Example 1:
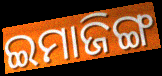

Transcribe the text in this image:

ଇମାଜିଙ୍ଗ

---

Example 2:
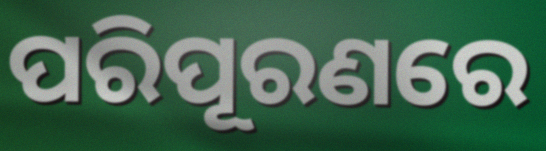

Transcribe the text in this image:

ପରିପୂରଣରେ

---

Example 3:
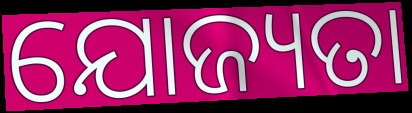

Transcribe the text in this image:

ଯୋଜ୍ୟତା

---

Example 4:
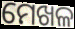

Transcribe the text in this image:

ମେଖଳ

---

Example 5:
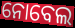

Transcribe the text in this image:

ନୋବେଲ